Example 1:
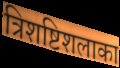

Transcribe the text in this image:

त्रिशष्टिशलाका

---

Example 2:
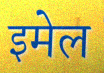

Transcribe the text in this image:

इमेल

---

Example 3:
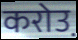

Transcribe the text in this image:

करोउ़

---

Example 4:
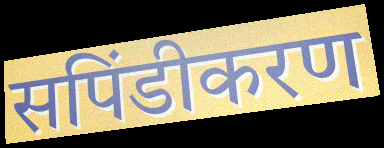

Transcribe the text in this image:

सपिंडीकरण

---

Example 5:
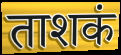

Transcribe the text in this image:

ताशकं